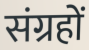
संग्रहों